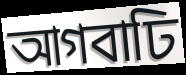
আগবাঢি